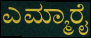
ಎಮ್ಮಾರೈ